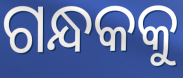
ଗନ୍ଧକକୁ